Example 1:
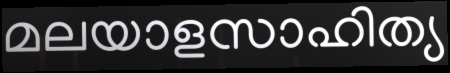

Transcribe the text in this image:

മലയാളസാഹിത്യ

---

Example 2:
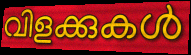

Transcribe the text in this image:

വിളക്കുകൾ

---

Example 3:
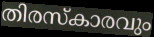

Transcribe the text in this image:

തിരസ്കാരവും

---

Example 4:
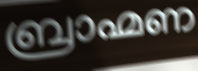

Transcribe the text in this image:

ബ്രാഹ്മണ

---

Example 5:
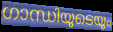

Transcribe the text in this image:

ഗാന്ധിയുടെയും